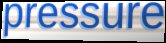
pressure